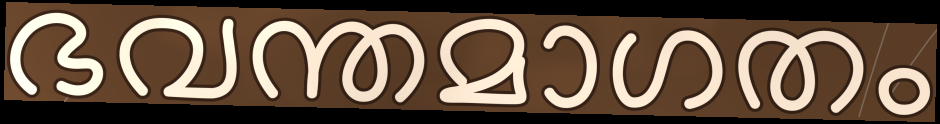
ഭവന്തമാഗതം